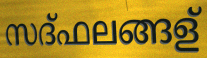
സദ്ഫലങ്ങള്